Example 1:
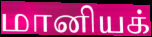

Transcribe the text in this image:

மானியக்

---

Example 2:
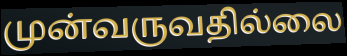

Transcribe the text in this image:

முன்வருவதில்லை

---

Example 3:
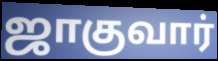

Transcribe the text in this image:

ஜாகுவார்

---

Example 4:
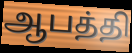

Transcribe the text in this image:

ஆபத்தி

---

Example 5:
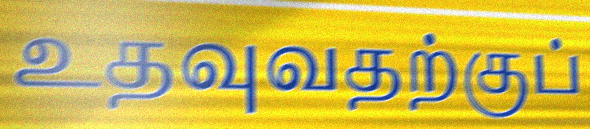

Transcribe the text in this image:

உதவுவதற்குப்